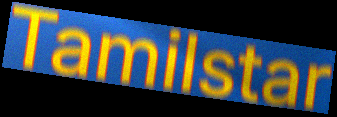
Tamilstar